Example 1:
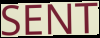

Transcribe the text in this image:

SENT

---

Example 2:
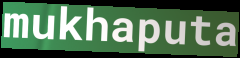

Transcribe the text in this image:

mukhaputa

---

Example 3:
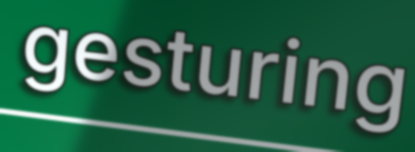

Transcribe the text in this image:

gesturing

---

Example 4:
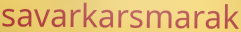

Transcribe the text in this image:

savarkarsmarak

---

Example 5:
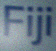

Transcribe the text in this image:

Fiji